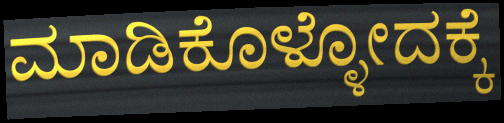
ಮಾಡಿಕೊಳ್ಳೋದಕ್ಕೆ